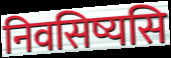
निवसिष्यसि